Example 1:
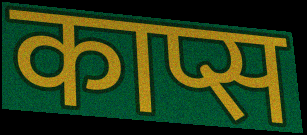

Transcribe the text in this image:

काप्स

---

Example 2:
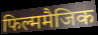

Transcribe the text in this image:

फिल्ममैजिक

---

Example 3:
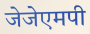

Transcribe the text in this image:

जेजेएमपी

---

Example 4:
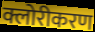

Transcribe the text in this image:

क्लोरीकरण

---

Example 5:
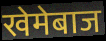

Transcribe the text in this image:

खेमेबाज